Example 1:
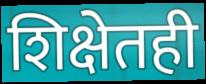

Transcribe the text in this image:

शिक्षेतही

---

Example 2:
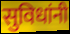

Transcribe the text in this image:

सुविधांनी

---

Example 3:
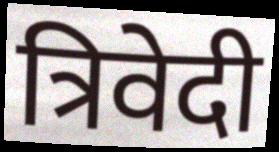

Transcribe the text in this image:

त्रिवेदी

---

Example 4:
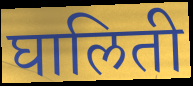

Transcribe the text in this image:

घालिती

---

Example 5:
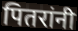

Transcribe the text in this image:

पितरांनी